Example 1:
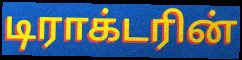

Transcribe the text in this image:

டிராக்டரின்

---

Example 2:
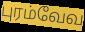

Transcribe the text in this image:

புரம்வேவ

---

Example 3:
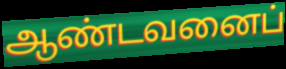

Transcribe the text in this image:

ஆண்டவனைப்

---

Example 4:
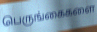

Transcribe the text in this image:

பெருங்கைகளை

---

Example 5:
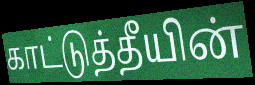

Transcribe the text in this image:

காட்டுத்தீயின்